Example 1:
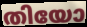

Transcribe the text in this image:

തിയോ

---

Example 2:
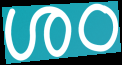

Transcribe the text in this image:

ശഠ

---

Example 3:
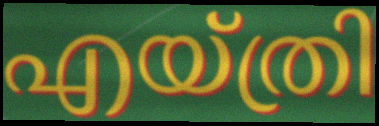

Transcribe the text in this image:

എയ്ത്രി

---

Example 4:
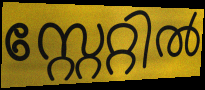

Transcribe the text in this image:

സ്റ്റേറ്റിൽ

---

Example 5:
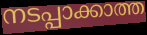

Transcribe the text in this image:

നടപ്പാക്കാത്ത